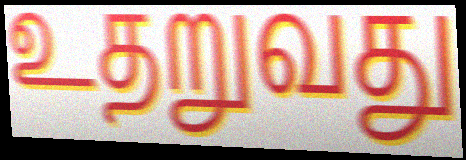
உதறுவது